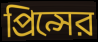
প্রিন্সের